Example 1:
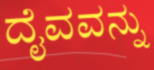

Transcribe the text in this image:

ದೈವವನ್ನು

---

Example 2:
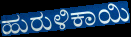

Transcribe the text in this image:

ಹುರುಳಿಕಾಯಿ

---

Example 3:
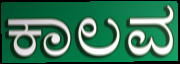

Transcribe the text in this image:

ಕಾಲವ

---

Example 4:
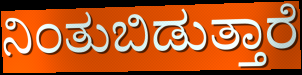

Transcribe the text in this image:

ನಿಂತುಬಿಡುತ್ತಾರೆ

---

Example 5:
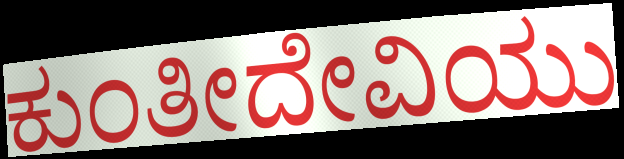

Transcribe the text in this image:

ಕುಂತೀದೇವಿಯು